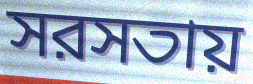
সরসতায়